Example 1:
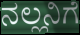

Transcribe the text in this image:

ನಲ್ಲನಿಗೆ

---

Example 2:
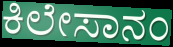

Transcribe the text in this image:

ಕಿಲೇಸಾನಂ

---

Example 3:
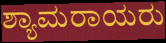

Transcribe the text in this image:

ಶ್ಯಾಮರಾಯರು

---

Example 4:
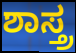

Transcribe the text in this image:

ಶಾಸ್ತ್ರ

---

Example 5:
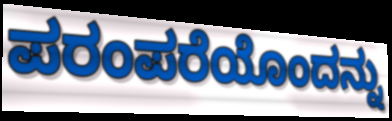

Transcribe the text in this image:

ಪರಂಪರೆಯೊಂದನ್ನು